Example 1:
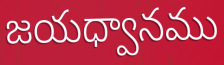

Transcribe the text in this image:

జయధ్వానము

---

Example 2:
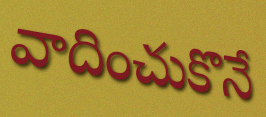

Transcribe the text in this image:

వాదించుకొనే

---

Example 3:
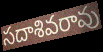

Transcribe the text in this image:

సదాశివరావు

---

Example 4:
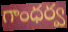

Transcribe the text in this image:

గాంధర్వ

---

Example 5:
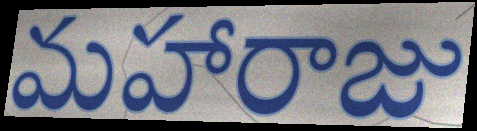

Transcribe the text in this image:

మహారాజు